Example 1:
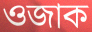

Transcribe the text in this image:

ওজাক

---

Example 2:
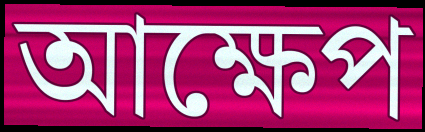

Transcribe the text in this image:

আক্ষেপ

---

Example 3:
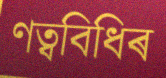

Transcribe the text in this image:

ণত্ববিধিৰ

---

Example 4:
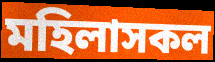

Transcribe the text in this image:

মহিলাসকল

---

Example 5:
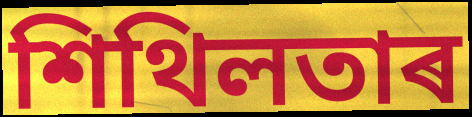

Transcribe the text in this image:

শিথিলতাৰ